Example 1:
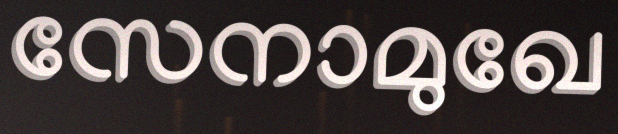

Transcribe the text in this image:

സേനാമുഖേ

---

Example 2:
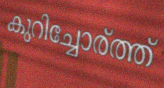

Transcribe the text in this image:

കുറിച്ചോര്ത്ത്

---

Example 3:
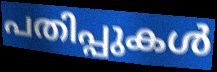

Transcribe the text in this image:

പതിപ്പുകൾ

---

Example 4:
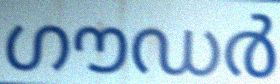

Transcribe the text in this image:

ഗൗഡർ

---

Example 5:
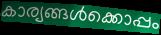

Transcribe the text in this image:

കാര്യങ്ങൾക്കൊപ്പം